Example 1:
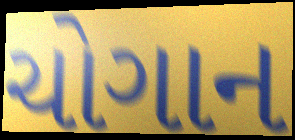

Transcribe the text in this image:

ચોગાન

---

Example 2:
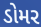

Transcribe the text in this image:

ડોમર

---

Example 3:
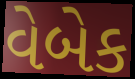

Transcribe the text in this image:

વેબેક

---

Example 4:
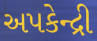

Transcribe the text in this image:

અપકેન્દ્રી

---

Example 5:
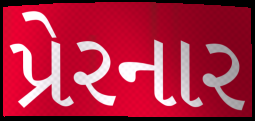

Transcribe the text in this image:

પ્રેરનાર